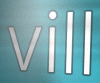
vill